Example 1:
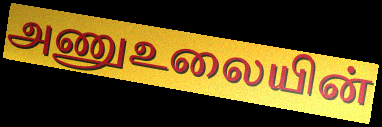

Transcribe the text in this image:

அணுஉலையின்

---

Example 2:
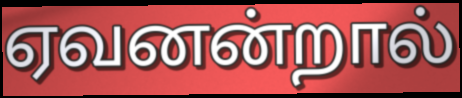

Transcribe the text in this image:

ஏவனன்றால்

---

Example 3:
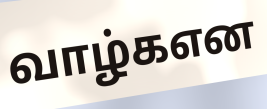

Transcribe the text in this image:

வாழ்கஎன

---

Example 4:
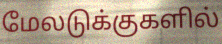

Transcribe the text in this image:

மேலடுக்குகளில்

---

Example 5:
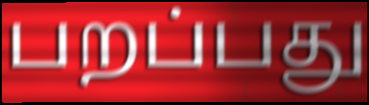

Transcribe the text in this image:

பறப்பது